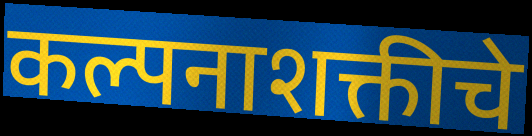
कल्पनाशक्तीचे